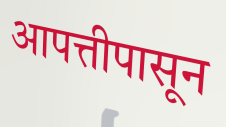
आपत्तीपासून